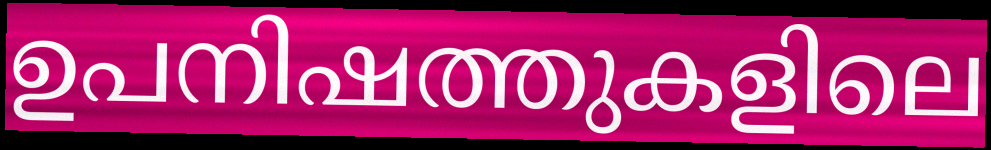
ഉപനിഷത്തുകളിലെ